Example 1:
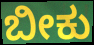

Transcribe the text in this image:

ಬೀಕು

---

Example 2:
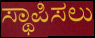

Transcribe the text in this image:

ಸ್ಥಾಪಿಸಲು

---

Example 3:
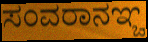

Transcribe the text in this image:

ಸಂವರಾನಞ್ಚ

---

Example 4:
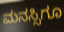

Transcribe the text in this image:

ಮನಸ್ಸಿಗೂ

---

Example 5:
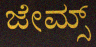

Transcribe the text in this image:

ಜೇಮ್ಸ್